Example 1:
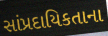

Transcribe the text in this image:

સાંપ્રદાયિકતાના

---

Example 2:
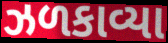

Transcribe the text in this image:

ઝળકાવ્યા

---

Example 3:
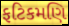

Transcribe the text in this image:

ફટિકમણિ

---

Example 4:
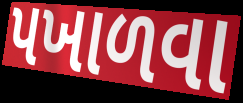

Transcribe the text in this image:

પખાળવા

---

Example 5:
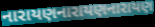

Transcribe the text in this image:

નારાયણનારાયણનારાયણ